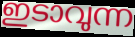
ഇടാവുന്ന